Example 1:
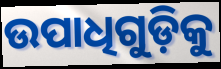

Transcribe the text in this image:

ଉପାଧିଗୁଡ଼ିକୁ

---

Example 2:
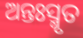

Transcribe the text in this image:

ଅନ୍ତଃସ୍ମୃତ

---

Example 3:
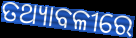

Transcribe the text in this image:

ତଥ୍ୟାବଳୀରେ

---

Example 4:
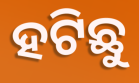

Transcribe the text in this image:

ହଟିଛୁ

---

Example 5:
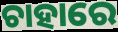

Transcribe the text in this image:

ଚାହାରେ